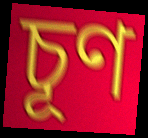
চূণ